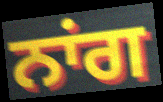
ਨਾਂਗ